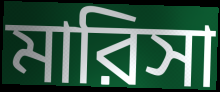
মারিসা